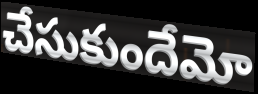
చేసుకుందేమో